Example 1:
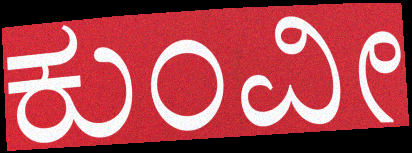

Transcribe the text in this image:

ಕುಂವೀ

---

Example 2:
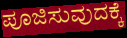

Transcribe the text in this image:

ಪೂಜಿಸುವುದಕ್ಕೆ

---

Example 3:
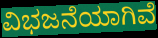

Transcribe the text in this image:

ವಿಭಜನೆಯಾಗಿವೆ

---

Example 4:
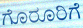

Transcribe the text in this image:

ಗೊರೂರಿಗೆ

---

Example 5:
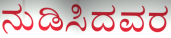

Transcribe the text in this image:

ನುಡಿಸಿದವರ